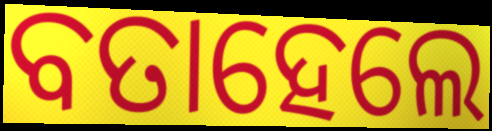
ବତାହେଲେ